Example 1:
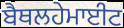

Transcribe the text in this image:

ਬੈਥਲਹੇਮਾਈਟ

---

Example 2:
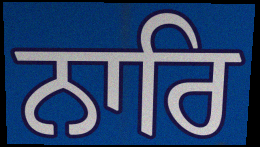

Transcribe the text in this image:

ਨਾਰਿ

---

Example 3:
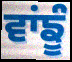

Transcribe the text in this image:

ਵਾਂਙੂੰ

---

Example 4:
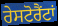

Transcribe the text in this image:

ਰੇਸਟੋਰੈਂਟਾਂ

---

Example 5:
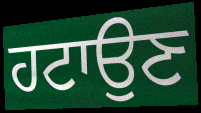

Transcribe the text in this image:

ਹਟਾਉਣ